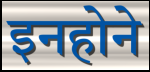
इनहोने